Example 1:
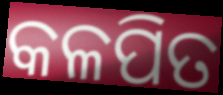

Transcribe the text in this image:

କଳପିତ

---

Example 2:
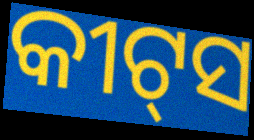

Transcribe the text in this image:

କୀଟ୍‌ସ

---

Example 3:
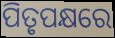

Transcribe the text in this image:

ପିତୃପକ୍ଷରେ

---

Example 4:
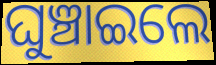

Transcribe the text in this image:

ଘୁଞ୍ଚାଇଲେ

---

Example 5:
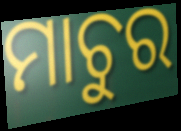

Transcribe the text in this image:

ମାଚୁର